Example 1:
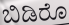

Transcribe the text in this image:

ಬಿಡಿರೊ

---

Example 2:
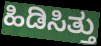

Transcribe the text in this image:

ಹಿಡಿಸಿತ್ತು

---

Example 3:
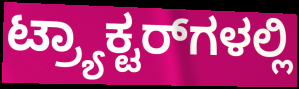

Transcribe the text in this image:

ಟ್ರ್ಯಾಕ್ಟರ್‌ಗಳಲ್ಲಿ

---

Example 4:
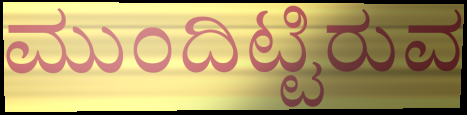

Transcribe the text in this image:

ಮುಂದಿಟ್ಟಿರುವ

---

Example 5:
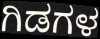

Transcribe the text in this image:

ಗಿಡಗಳ